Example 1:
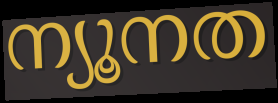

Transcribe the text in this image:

ന്യൂനത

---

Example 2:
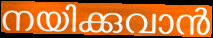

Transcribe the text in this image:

നയിക്കുവാൻ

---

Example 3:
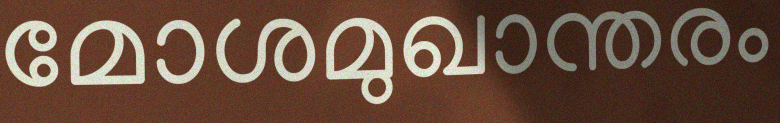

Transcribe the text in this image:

മോശമുഖാന്തരം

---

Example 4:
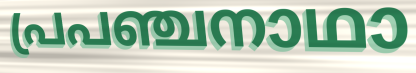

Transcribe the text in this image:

പ്രപഞ്ചനാഥാ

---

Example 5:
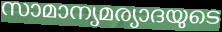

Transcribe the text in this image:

സാമാന്യമര്യാദയുടെ